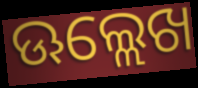
ଊଲ୍ଲେଖ